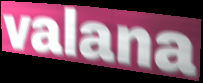
valana